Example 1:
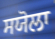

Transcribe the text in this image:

ਸਯੋਲਾ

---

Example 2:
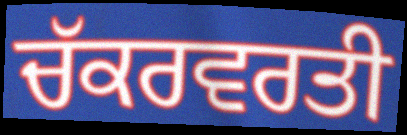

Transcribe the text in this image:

ਚੱਕਰਵਰਤੀ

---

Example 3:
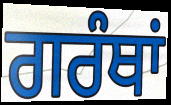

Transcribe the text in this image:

ਗਰੰਥਾਂ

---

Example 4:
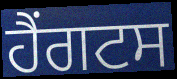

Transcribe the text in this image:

ਹੈਂਗਟਸ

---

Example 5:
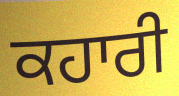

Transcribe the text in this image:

ਕਹਾਰੀ